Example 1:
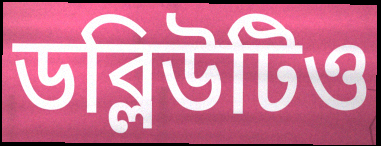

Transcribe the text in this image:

ডব্লিউটিও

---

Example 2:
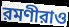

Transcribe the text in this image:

রমণীরাও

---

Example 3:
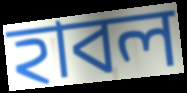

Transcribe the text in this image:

হাবল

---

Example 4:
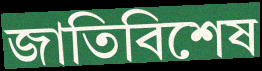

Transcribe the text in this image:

জাতিবিশেষ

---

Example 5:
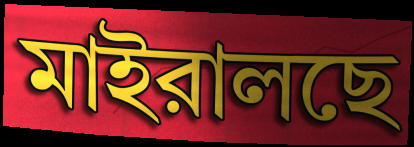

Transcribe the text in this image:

মাইরালছে